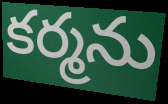
కర్మను